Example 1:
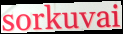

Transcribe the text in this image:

sorkuvai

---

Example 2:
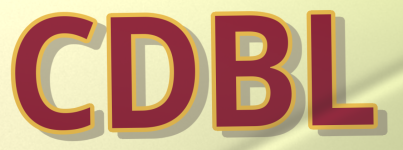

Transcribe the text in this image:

CDBL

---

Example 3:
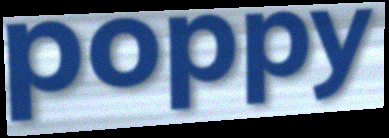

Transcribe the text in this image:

poppy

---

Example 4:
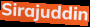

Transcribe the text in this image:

Sirajuddin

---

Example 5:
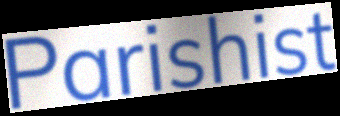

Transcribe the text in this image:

Parishist